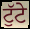
ਟੁੱਟੇ